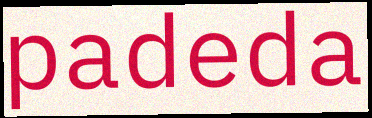
padeda